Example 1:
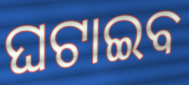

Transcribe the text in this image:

ଘଟାଇବ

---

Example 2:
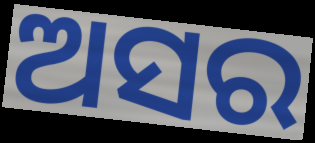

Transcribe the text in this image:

ଅସର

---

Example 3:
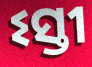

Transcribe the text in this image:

ଽସ୍ତୀ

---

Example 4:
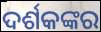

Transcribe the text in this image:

ଦର୍ଶକଙ୍କର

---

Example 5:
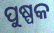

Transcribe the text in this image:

ପୁଷ୍ପକ